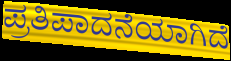
ಪ್ರತಿಪಾದನೆಯಾಗಿದೆ